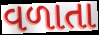
વળાતા